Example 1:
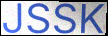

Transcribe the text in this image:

JSSK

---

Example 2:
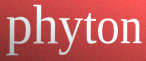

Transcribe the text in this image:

phyton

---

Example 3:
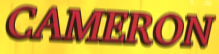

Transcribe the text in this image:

CAMERON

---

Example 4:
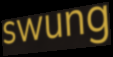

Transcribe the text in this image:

swung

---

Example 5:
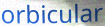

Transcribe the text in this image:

orbicular